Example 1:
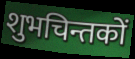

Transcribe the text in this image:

शुभचिन्तकों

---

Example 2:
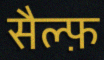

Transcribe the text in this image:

सैल्फ़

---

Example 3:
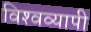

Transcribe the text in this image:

विश्‍वव्यापी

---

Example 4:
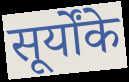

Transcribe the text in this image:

सूर्योंके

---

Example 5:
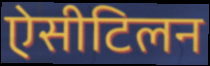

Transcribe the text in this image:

ऐसीटिलन